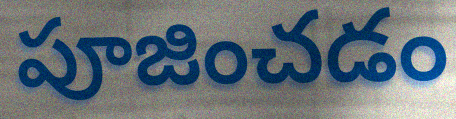
పూజించడం